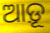
ଆଡ଼ୂ